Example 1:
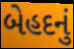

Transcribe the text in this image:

બેહદનું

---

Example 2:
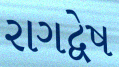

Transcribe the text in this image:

રાગદ્વેષ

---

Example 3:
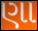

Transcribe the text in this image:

ણા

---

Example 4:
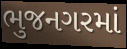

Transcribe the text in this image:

ભુજનગરમાં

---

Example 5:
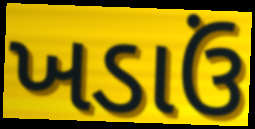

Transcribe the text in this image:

ખડાઉં